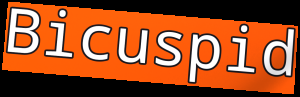
Bicuspid